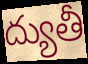
ద్యుతీ